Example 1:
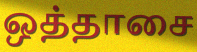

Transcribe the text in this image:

ஒத்தாசை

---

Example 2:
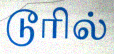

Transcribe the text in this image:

டூரில்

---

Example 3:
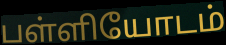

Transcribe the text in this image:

பள்ளியோடம்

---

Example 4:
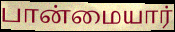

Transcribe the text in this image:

பான்மையார்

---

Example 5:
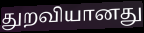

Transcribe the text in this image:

துறவியானது